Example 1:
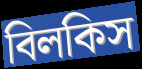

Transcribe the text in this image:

বিলকিস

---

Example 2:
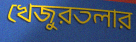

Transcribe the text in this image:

খেজুরতলার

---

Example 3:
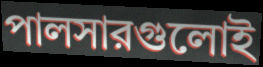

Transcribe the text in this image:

পালসারগুলোই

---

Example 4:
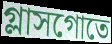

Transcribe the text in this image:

গ্লাসগোতে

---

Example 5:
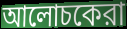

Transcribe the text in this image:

আলোচকেরা